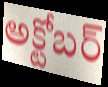
అక్టోబర్